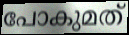
പോകുമത്